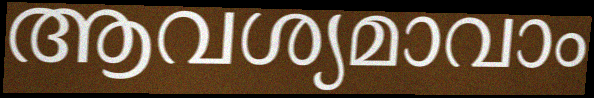
ആവശ്യമാവാം